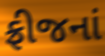
ફ્રીજનાં